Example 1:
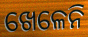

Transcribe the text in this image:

ଖେଳେନି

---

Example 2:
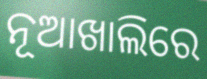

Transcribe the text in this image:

ନୂଆଖାଲିରେ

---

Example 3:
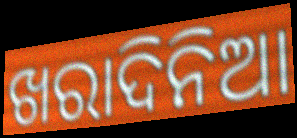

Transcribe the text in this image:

ଖରାଦିନିଆ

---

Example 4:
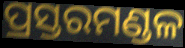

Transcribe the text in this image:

ପ୍ରସ୍ତରମଣ୍ଡଳ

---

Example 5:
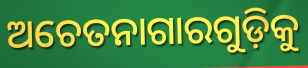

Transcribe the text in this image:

ଅଚେତନାଗାରଗୁଡ଼ିକୁ